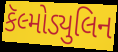
કૅલ્મોડ્યુલિન